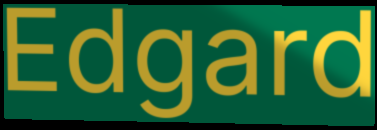
Edgard